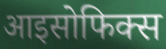
आइसोफिक्स